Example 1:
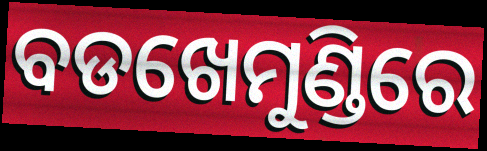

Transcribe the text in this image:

ବଡଖେମୁଣ୍ଡିରେ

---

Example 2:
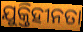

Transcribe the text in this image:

ଯୁକ୍ତିହୀନତା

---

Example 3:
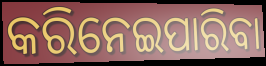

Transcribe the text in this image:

କରିନେଇପାରିବା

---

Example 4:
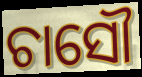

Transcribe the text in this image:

ଚାସୌ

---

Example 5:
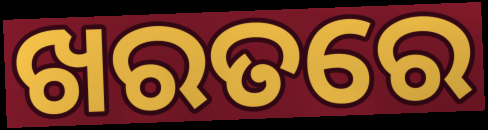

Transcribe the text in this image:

ଖରତରେ